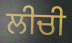
ਲੀਚੀ